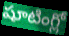
షూటింగ్లో